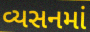
વ્યસનમાં